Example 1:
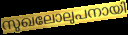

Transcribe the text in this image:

സുഖലോലുപനായി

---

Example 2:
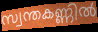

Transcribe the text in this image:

സ്വന്തകണ്ണിൽ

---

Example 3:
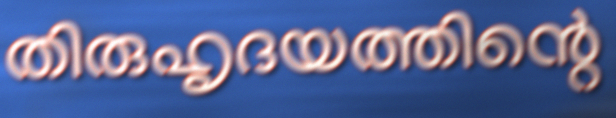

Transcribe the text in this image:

തിരുഹൃദയത്തിന്റെ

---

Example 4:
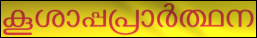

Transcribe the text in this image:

കൂശാപ്പപ്രാർത്ഥന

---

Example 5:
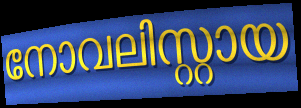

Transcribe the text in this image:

നോവലിസ്റ്റായ